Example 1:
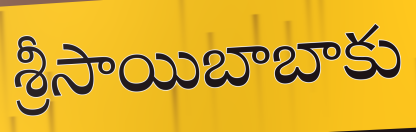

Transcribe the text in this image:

శ్రీసాయిబాబాకు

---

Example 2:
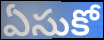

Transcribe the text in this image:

ఏసుకో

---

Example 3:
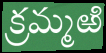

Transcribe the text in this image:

క్రమ్మఱి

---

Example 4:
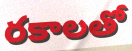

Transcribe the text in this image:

రకాలతో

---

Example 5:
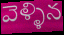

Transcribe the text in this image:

వెళ్ళిన